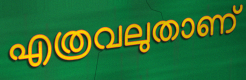
എത്രവലുതാണ്